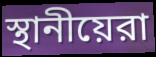
স্থানীয়েরা